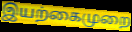
இயற்கைமுறை